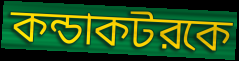
কন্ডাকটরকে